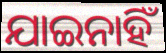
ଯାଇନାହିଁ